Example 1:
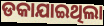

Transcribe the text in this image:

ଡକାଯାଇଥିଲା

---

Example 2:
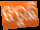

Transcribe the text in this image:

ଝରୁଛି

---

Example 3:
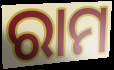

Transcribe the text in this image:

ରାମ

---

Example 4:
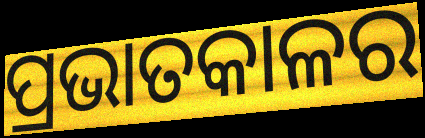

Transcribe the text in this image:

ପ୍ରଭାତକାଳର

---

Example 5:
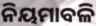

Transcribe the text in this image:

ନିୟମାବଳି